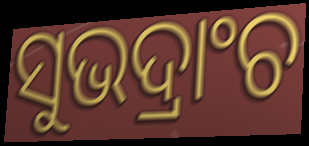
ସୁଭଦ୍ରାଂଚ